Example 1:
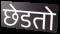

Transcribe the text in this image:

छेडतो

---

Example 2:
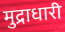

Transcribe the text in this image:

मुद्राधारी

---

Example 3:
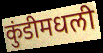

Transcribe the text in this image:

कुंडीमधली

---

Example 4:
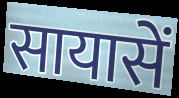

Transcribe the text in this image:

सायासें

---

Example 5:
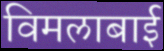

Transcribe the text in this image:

विमलाबाई